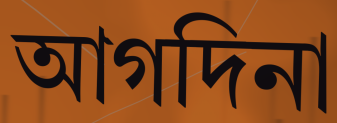
আগদিনা